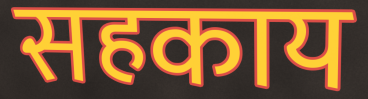
सहकाय